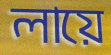
লায়ে